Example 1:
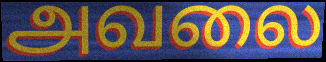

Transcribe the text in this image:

அவலை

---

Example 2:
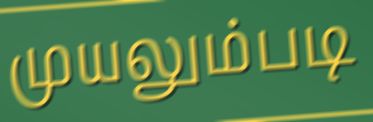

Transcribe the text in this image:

முயலும்படி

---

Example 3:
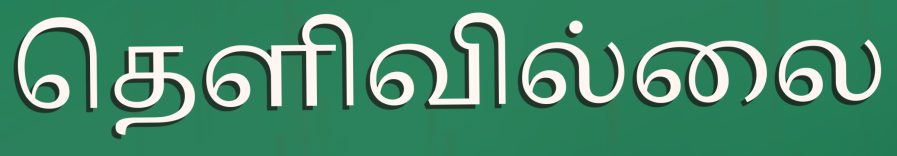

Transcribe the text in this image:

தெளிவில்லை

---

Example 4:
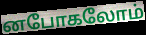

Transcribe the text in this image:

னபோகலோம்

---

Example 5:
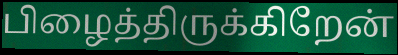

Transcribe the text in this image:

பிழைத்திருக்கிறேன்